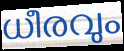
ധീരവും